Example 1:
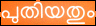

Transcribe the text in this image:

പുതിയതും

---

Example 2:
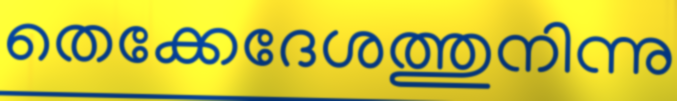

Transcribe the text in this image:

തെക്കേദേശത്തുനിന്നു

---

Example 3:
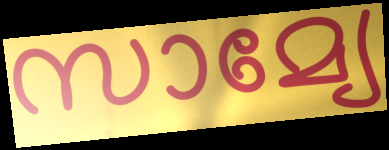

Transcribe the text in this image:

സാമ്യേ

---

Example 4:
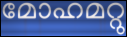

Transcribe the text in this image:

മോഹമറ്റു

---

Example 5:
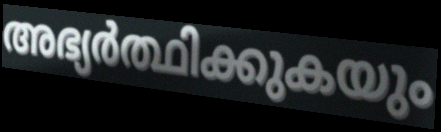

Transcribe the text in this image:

അഭ്യർത്ഥിക്കുകയും